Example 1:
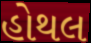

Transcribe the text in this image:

હોથલ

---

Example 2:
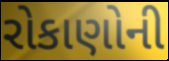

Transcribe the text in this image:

રોકાણોની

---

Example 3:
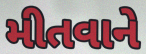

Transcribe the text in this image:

મીતવાને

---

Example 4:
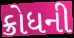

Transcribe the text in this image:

ક્રોધની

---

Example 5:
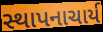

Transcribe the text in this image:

સ્થાપનાચાર્ય